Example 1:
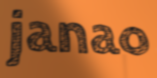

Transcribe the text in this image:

janao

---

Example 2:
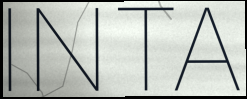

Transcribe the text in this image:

INTA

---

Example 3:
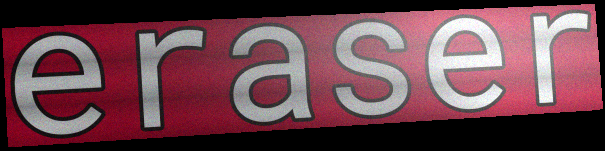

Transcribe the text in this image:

eraser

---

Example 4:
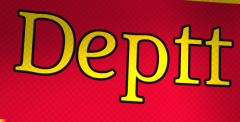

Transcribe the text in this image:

Deptt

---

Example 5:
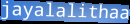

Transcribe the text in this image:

jayalalithaa